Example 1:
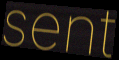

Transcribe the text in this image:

sent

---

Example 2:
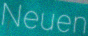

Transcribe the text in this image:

Neuen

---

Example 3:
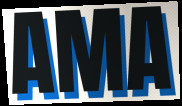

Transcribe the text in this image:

AMA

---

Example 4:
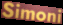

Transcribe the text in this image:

Simoni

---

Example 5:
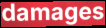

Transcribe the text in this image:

damages